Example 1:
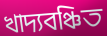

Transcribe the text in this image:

খাদ্যবঞ্চিত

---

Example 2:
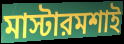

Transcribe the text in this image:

মাস্টারমশাই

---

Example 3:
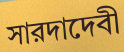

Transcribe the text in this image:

সারদাদেবী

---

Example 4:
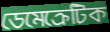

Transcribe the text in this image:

ডেমেক্রেটিক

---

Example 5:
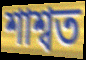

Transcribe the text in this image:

শাশ্বত